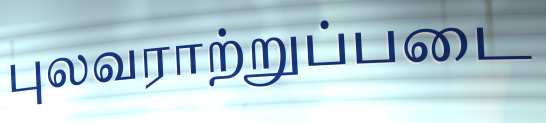
புலவராற்றுப்படை